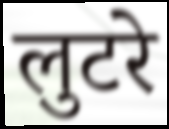
लुटरे